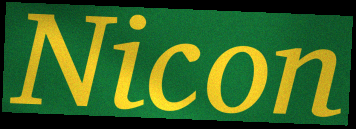
Nicon